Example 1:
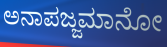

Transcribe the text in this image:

ಅನಾಪಜ್ಜಮಾನೋ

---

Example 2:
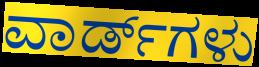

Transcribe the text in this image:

ವಾರ್ಡ್‌ಗಳು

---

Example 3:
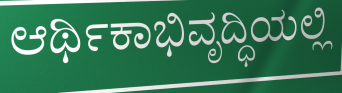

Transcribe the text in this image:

ಆರ್ಥಿಕಾಭಿವೃದ್ಧಿಯಲ್ಲಿ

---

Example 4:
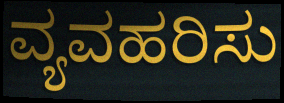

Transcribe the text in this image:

ವ್ಯವಹರಿಸು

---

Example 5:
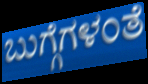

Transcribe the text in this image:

ಬುಗ್ಗೆಗಳಂತೆ